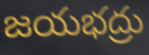
జయభద్రు